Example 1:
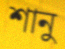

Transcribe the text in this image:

শানু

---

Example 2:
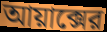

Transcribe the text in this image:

আয়াক্সের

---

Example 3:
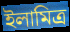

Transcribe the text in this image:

ইলামিত্র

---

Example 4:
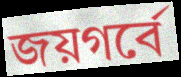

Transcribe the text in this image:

জয়গর্বে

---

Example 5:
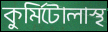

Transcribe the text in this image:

কুর্মিটোলাস্থ